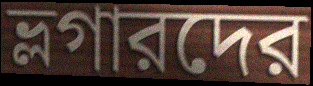
ভ্লগারদের